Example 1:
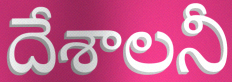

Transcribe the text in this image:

దేశాలనీ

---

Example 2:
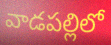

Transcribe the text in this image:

వాడపల్లిలో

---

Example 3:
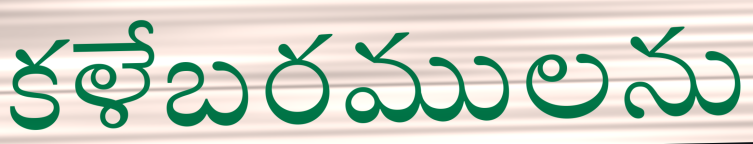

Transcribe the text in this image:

కళేబరములను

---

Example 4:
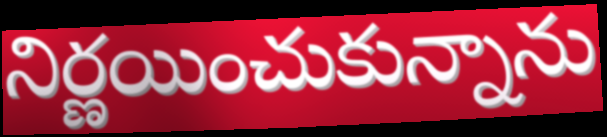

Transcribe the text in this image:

నిర్ణయించుకున్నాను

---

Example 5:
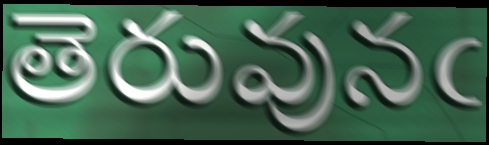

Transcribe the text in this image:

తెరువునఁ